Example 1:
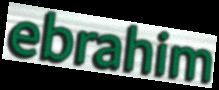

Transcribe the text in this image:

ebrahim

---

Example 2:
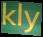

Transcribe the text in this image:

kly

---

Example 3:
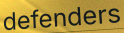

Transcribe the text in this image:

defenders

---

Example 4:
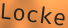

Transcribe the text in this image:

Locke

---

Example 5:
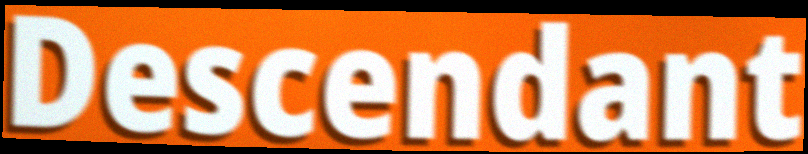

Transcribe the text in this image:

Descendant